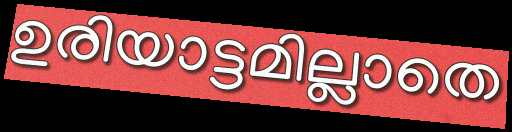
ഉരിയാട്ടമില്ലാതെ